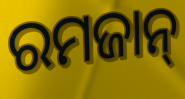
ରମଜାନ୍